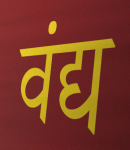
वंद्य